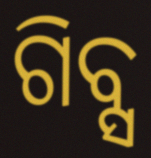
ଗିବ୍ସ